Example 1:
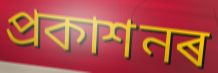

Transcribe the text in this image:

প্ৰকাশনৰ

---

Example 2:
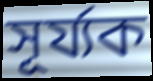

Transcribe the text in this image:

সূৰ্য্যক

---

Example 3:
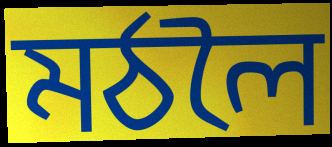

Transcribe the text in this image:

মঠলৈ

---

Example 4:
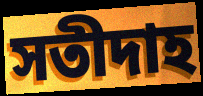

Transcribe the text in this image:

সতীদাহ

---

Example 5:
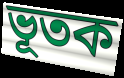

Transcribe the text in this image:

ভূতক